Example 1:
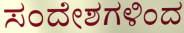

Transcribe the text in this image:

ಸಂದೇಶಗಳಿಂದ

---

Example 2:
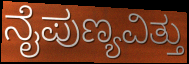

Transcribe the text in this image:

ನೈಪುಣ್ಯವಿತ್ತು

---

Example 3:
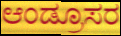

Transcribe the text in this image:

ಆಂಡ್ರೂಸರ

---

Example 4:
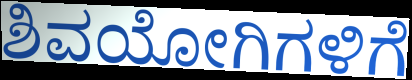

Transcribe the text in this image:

ಶಿವಯೋಗಿಗಳಿಗೆ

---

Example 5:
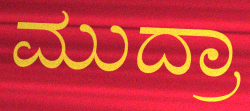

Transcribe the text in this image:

ಮುದ್ರಾ